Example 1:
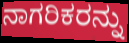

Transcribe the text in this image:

ನಾಗರಿಕರನ್ನು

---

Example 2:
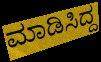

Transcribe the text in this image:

ಮಾಡಿಸಿದ್ದ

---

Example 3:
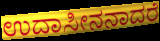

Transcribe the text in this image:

ಉದಾಸೀನನಾದರೆ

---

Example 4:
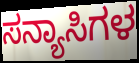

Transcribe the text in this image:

ಸನ್ಯಾಸಿಗಳ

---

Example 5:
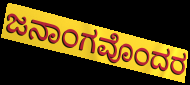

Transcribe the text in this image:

ಜನಾಂಗವೊಂದರ